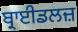
ਬ੍ਰਾਈਡਲਜ਼